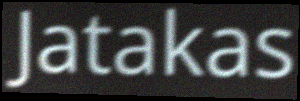
Jatakas